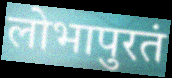
लोभापुरतं